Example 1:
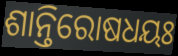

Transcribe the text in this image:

ଶାନ୍ତିରୋଷଧୟଃ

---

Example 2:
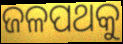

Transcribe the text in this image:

ଜଳପଥକୁ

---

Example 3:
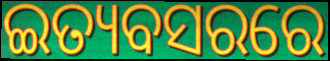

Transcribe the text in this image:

ଇତ୍ୟବସରରେ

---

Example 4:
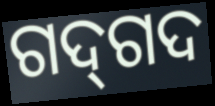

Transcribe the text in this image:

ଗଦ୍‍ଗଦ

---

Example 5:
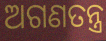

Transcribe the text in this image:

ଅଗଣତନ୍ତ୍ର